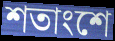
শতাংশে